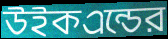
উইকএন্ডের